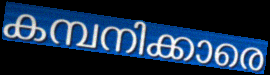
കമ്പനിക്കാരെ